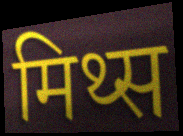
मिथ्स